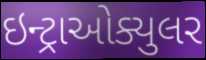
ઇન્ટ્રાઓક્યુલર